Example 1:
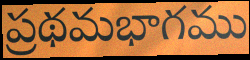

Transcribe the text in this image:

ప్రథమభాగము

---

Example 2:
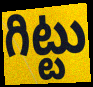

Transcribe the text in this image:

గిట్టు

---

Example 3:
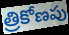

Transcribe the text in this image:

త్రికోణపు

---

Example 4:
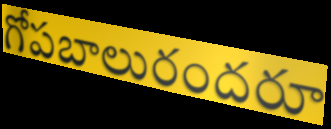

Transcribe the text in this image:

గోపబాలురందరూ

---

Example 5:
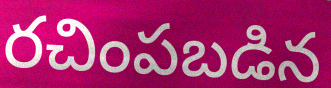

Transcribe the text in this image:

రచింపబడిన